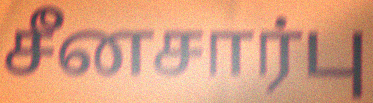
சீனசார்பு